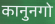
कानुनगो